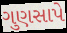
ગુણસાપે